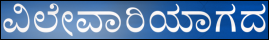
ವಿಲೇವಾರಿಯಾಗದ